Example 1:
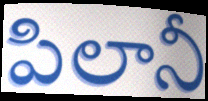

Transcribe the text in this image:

పిలానీ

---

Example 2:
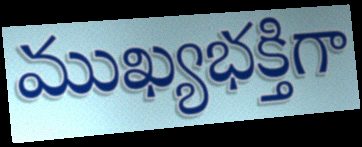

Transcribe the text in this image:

ముఖ్యభక్తిగా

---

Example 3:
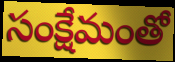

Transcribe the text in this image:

సంక్షేమంతో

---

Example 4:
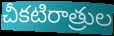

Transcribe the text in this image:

చీకటిరాత్రుల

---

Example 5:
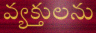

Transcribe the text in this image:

వ్యక్తులను